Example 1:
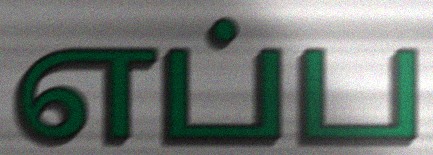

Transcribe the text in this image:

எப்ப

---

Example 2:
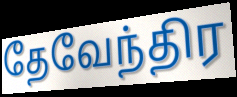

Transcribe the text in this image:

தேவேந்திர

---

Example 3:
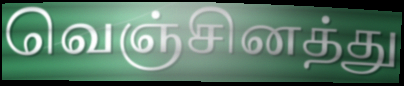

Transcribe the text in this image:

வெஞ்சினத்து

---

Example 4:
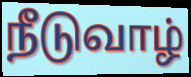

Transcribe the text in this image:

நீடுவாழ்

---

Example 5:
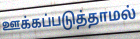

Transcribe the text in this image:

ஊக்கப்படுத்தாமல்